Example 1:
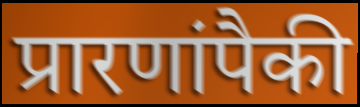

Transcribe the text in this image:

प्रारणांपैकी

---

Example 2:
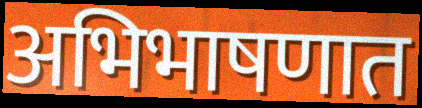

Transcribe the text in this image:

अभिभाषणात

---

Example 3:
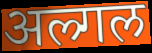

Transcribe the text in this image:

अल्गल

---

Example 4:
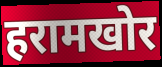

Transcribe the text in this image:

हरामखोर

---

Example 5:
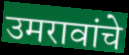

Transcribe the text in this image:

उमरावांचे